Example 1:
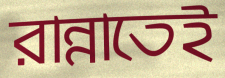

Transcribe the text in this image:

রান্নাতেই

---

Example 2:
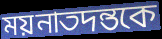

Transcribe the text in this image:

ময়নাতদন্তকে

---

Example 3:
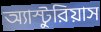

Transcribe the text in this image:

অ্যাস্টুরিয়াস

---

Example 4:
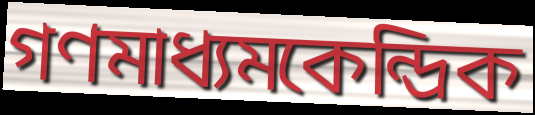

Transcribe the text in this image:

গণমাধ্যমকেন্দ্রিক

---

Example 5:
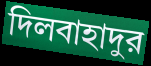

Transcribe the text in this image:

দিলবাহাদুর